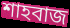
শাহবাজ